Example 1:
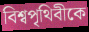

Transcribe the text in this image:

বিশ্বপৃথিবীকে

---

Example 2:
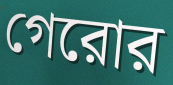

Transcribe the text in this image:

গেরোর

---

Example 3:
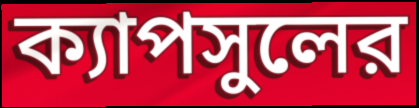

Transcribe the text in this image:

ক্যাপসুলের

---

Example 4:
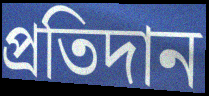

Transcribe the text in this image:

প্রতিদান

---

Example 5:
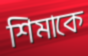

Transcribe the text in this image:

শিমাকে